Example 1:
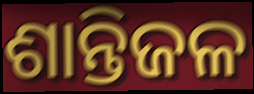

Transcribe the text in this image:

ଶାନ୍ତିଜଳ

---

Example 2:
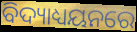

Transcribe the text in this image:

ବିଦ୍ୟାଧ୍ୟୟନରେ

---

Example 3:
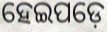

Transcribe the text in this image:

ହେଇପଡ଼େ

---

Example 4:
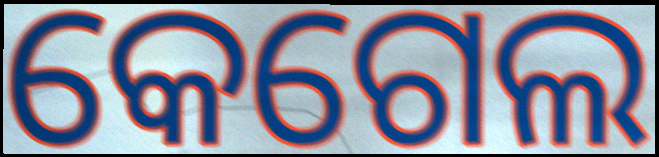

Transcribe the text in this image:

କେଗେଲ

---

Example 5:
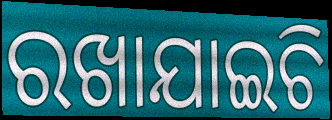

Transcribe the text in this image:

ରଖାଯାଇଚି